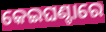
କେଇଘଣ୍ଟାରେ